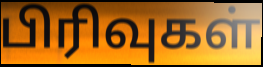
பிரிவுகள்